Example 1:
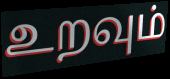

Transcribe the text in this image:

உறவும்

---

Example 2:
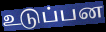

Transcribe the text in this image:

உடுப்பன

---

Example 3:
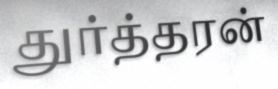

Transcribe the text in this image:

துர்த்தரன்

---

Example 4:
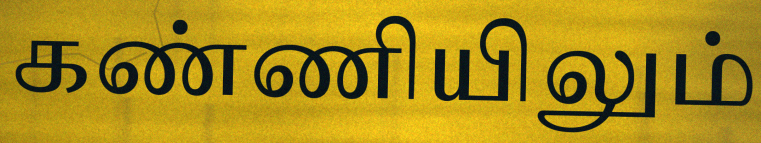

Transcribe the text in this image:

கண்ணியிலும்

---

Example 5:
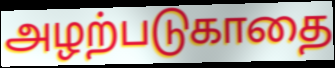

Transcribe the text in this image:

அழற்படுகாதை